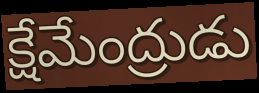
క్షేమేంద్రుడు